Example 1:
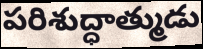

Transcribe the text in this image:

పరిశుద్ధాత్ముడు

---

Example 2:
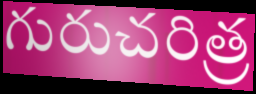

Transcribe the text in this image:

గురుచరిత్ర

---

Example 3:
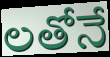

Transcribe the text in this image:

లతోనే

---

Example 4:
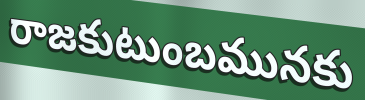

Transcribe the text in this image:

రాజకుటుంబమునకు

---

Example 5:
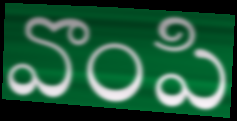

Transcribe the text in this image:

వొంపి